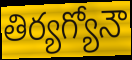
తిర్యగ్యోనౌ